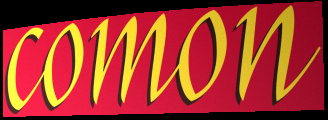
comon